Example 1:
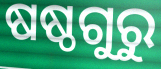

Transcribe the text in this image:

ଷଷ୍ଠଗୁରୁ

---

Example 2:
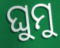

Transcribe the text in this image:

ଘୁମୁ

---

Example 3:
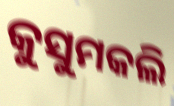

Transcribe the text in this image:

କୁସୁମକଲି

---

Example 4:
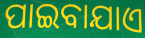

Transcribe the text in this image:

ପାଇବାଯାଏ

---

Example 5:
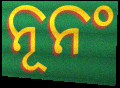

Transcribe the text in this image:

ନୂନଂ